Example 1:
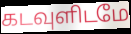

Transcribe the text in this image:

கடவுளிடமே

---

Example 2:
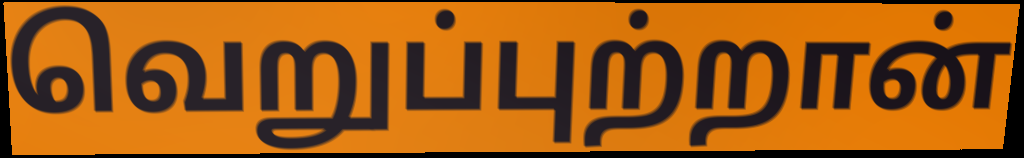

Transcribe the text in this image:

வெறுப்புற்றான்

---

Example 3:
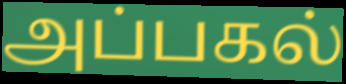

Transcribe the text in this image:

அப்பகல்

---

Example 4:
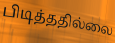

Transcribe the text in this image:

பிடித்ததில்லை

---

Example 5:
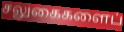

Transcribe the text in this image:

சலுகைகளைப்